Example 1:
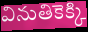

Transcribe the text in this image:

వినుతికెక్కి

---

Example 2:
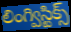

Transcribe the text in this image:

లింగ్విస్టిక్స్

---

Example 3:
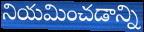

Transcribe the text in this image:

నియమించడాన్ని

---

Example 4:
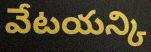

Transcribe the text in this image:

వేటయన్కి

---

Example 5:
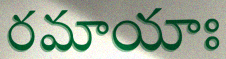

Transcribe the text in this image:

రమాయాః